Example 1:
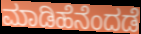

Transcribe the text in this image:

ಮಾಡಿಹೆನೆಂದಡೆ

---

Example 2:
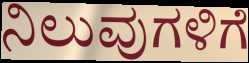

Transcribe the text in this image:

ನಿಲುವುಗಳಿಗೆ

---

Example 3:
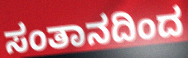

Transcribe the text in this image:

ಸಂತಾನದಿಂದ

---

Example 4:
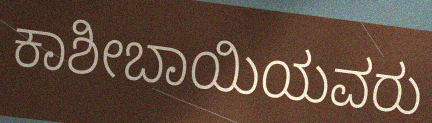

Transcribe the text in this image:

ಕಾಶೀಬಾಯಿಯವರು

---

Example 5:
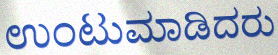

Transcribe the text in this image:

ಉಂಟುಮಾಡಿದರು